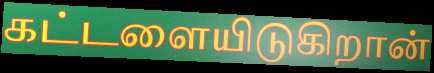
கட்டளையிடுகிறான்